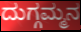
ದುಗ್ಗಮ್ಮನ